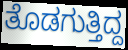
ತೊಡಗುತ್ತಿದ್ದ